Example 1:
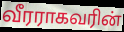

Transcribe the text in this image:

வீரராகவரின்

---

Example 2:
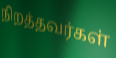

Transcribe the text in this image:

நிறத்தவர்கள்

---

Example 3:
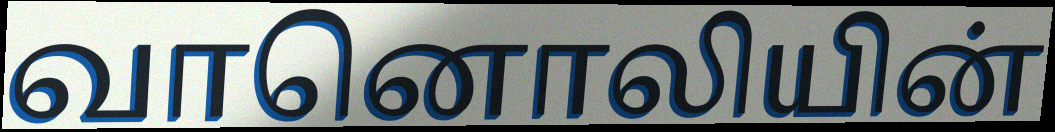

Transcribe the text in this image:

வானொலியின்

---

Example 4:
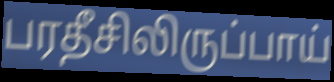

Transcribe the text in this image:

பரதீசிலிருப்பாய்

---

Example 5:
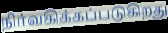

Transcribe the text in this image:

நிர்வகிக்கப்படுகிறது